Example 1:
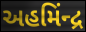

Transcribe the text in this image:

અહમિંન્દ્ર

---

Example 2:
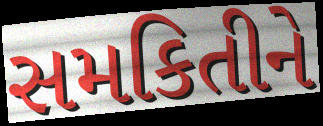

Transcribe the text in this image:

સમકિતીને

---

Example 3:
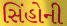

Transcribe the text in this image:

સિંહોની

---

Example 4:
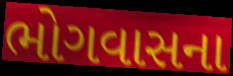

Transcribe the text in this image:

ભોગવાસના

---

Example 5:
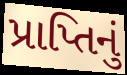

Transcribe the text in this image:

પ્રાપ્‍તિનું